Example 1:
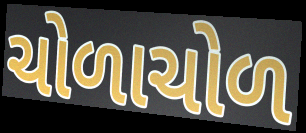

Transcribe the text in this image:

ચોળાચોળ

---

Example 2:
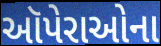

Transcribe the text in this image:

ઑપેરાઓના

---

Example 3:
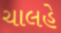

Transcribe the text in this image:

ચાલહે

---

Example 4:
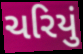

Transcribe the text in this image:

ચરિયું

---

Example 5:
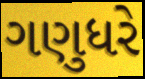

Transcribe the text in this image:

ગણુધરે